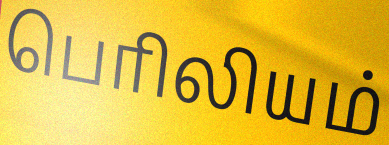
பெரிலியம்